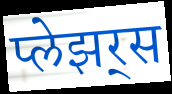
प्लेझर्स